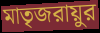
মাতৃজরায়ুর